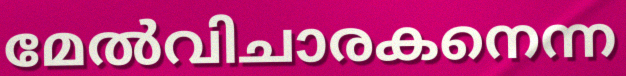
മേൽവിചാരകനെന്ന